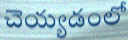
చెయ్యడంలో